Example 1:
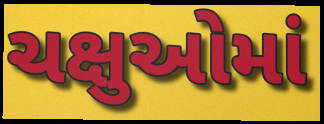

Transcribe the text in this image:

ચક્ષુઓમાં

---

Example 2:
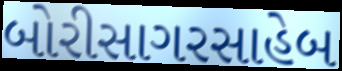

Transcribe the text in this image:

બોરીસાગરસાહેબ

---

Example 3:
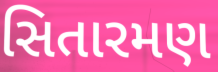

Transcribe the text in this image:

સિતારમણ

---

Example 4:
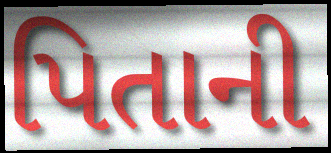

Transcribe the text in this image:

પિતાની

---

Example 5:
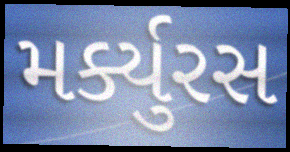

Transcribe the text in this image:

મર્ક્યુરસ